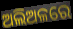
ଅଲିଅଳରେ